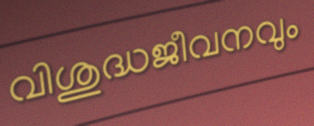
വിശുദ്ധജീവനവും